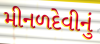
મીનળદેવીનું